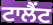
ਟਾਲੈਂਟ